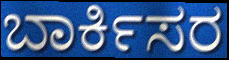
ಬಾರ್ಕಿಸರ